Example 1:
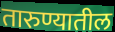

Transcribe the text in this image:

तारुण्यातील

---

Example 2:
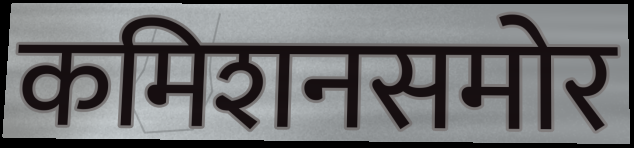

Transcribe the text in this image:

कमिशनसमोर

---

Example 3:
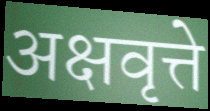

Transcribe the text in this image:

अक्षवृत्ते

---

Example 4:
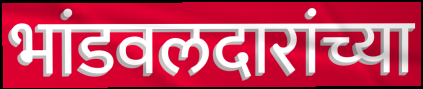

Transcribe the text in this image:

भांडवलदारांच्या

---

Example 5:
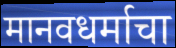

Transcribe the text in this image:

मानवधर्माचा